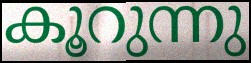
കൂറുന്നു